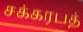
சக்கரபத்